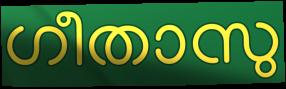
ഗീതാസു